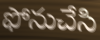
ఫోనుచేసి